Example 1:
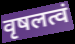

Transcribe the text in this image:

वृषलत्वं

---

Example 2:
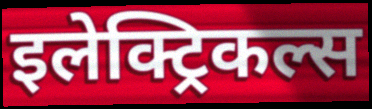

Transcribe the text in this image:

इलेक्ट्रिकल्स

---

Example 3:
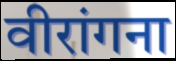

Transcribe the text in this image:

वीरांगना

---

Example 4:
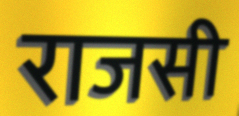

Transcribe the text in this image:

राजसी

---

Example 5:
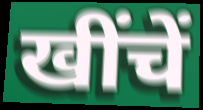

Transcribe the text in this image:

खींचें